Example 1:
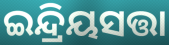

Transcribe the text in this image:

ଇନ୍ଦ୍ରିୟସତ୍ତା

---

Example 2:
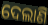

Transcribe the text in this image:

ଦେଲାଣି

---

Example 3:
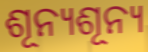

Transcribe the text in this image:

ଶୂନ୍ୟଶୂନ୍ୟ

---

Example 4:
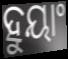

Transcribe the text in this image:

ହୁୟାଂ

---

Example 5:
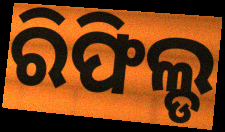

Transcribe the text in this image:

ରିଫିଲ୍ଡ